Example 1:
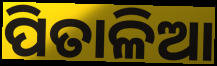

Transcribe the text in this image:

ପିତାଳିଆ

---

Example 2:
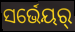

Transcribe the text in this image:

ସର୍ଭେୟର୍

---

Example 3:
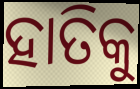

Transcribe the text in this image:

ହାତିକୁ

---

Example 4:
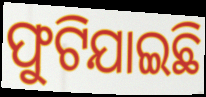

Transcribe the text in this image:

ଫୁଟିଯାଇଛି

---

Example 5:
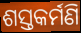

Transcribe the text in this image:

ଶସ୍ତକର୍ମଣି